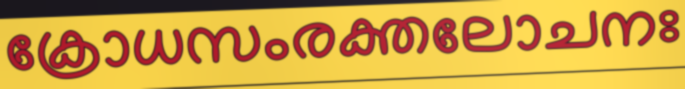
ക്രോധസംരക്തലോചനഃ